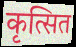
कृत्सित